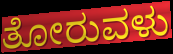
ತೋರುವಳು